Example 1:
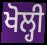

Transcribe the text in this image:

ਖੋਲ੍ਹੀ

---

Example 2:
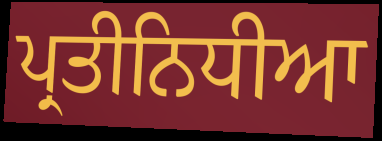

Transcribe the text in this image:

ਪ੍ਰਤੀਨਿਧੀਆ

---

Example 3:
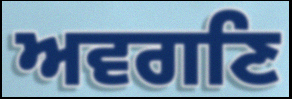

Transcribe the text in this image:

ਅਵਗਣਿ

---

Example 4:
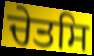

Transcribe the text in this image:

ਚੇਤਸਿ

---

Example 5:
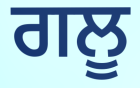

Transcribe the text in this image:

ਗਲੂ